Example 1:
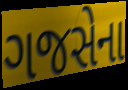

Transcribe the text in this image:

ગજસેના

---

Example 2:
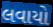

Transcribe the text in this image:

લવાયો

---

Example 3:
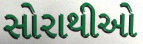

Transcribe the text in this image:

સોરાથીઓ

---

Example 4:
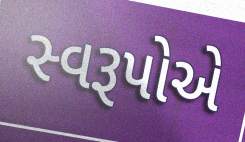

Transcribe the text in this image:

સ્વરૂપોએ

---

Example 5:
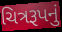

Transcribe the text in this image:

ચિત્રરૂપનું